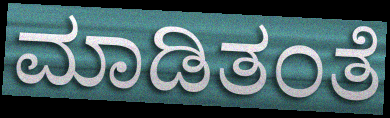
ಮಾಡಿತಂತೆ